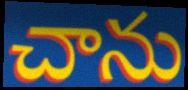
చాను